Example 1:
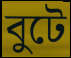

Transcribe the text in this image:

বুটে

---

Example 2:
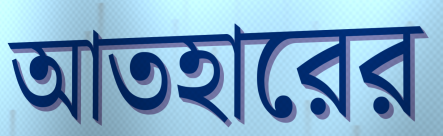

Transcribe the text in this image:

আতহারের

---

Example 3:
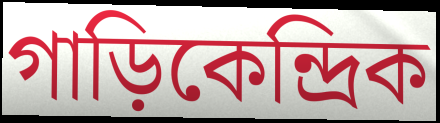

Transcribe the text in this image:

গাড়িকেন্দ্রিক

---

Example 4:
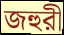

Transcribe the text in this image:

জহুরী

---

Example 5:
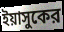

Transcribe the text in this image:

ইয়াসুকের